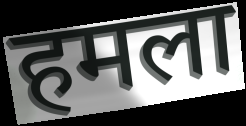
हमला